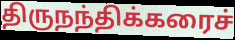
திருநந்திக்கரைச்